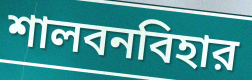
শালবনবিহার